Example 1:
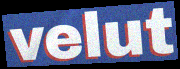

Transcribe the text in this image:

velut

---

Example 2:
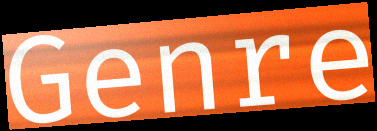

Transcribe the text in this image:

Genre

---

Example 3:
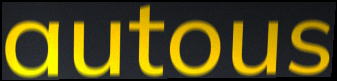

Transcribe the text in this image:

autous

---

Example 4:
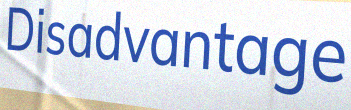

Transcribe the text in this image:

Disadvantage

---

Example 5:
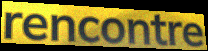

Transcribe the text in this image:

rencontre